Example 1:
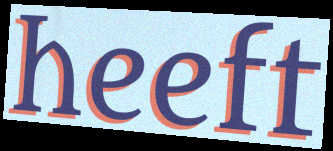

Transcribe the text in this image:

heeft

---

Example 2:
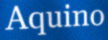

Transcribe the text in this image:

Aquino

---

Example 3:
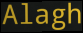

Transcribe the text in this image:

Alagh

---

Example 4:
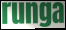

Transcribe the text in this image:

runga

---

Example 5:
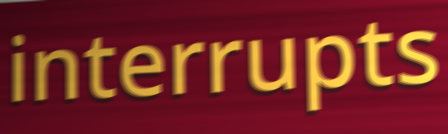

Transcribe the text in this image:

interrupts